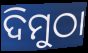
ଦିମୁଠା